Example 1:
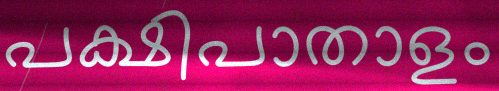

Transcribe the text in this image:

പക്ഷിപാതാളം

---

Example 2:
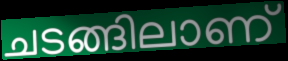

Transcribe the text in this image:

ചടങ്ങിലാണ്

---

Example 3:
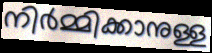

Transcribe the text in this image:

നിർമ്മിക്കാനുള്ള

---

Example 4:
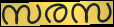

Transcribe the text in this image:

സരസ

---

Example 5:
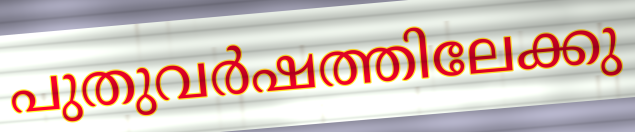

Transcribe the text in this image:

പുതുവർഷത്തിലേക്കു